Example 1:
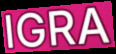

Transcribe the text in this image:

IGRA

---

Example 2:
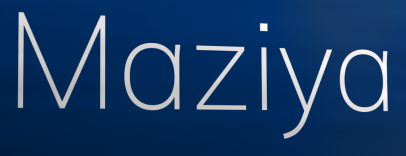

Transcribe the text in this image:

Maziya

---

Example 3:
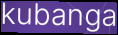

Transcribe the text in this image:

kubanga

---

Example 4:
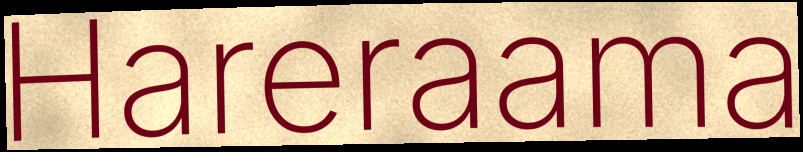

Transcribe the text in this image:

Hareraama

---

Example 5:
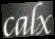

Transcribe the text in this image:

calx